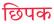
छिपक